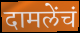
दामलेंचं